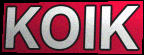
KOIK